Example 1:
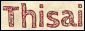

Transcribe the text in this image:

Thisai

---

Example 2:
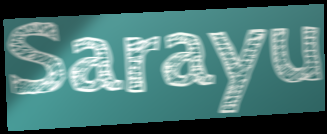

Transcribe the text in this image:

Sarayu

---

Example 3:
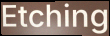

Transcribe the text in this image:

Etching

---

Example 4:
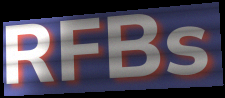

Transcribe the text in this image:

RFBs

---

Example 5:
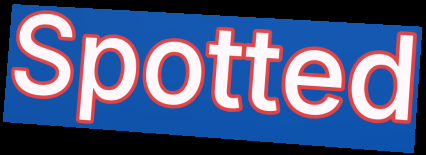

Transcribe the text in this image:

Spotted